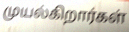
முயல்கிறார்கள்